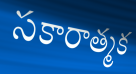
సకారాత్మక